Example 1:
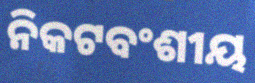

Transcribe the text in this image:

ନିକଟବଂଶୀୟ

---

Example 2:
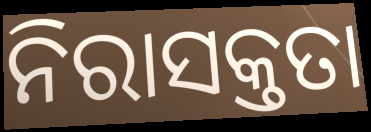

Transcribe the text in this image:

ନିରାସକ୍ତତା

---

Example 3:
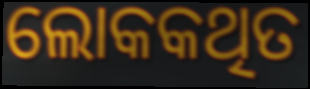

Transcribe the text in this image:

ଲୋକକଥିତ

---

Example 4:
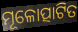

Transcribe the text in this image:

ମୂଳୋତ୍ପାଟିତ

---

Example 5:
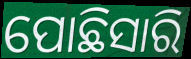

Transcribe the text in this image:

ପୋଛିସାରି